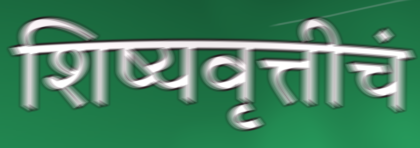
शिष्यवृत्तीचं